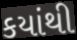
કયાંથી